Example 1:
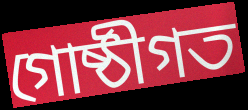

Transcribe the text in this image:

গোষ্ঠীগত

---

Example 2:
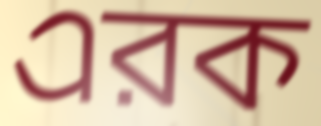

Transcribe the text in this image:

এরক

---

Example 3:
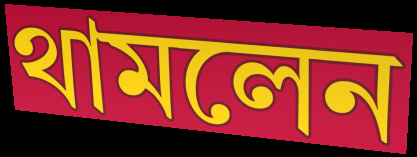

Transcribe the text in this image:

থামলেন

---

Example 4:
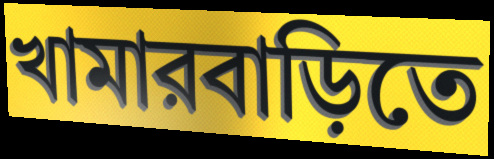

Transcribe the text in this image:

খামারবাড়িতে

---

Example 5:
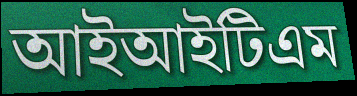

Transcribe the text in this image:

আইআইটিএম